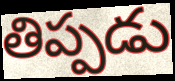
తిప్పడు